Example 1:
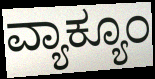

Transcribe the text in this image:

ವ್ಯಾಕ್ಯೂಂ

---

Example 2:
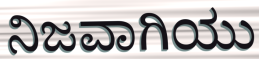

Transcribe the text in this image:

ನಿಜವಾಗಿಯು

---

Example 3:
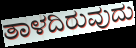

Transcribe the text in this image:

ತಾಳದಿರುವುದು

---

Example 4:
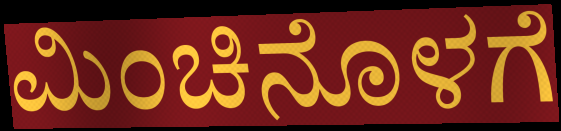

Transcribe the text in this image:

ಮಿಂಚಿನೊಳಗೆ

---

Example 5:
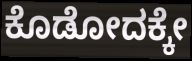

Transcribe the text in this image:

ಕೊಡೋದಕ್ಕೇ